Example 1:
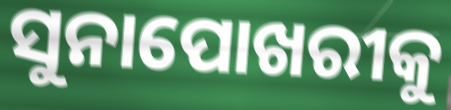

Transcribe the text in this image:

ସୁନାପୋଖରୀକୁ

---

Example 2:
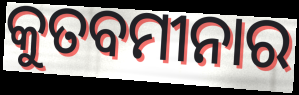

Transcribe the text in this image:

କୁତବମୀନାର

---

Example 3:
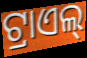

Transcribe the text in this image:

ଟ୍ରାଏଲ୍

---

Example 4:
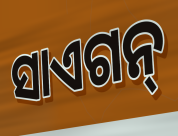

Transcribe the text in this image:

ସାଏଗନ୍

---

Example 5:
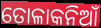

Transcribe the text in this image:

ତୋଳାକନିଆଁ